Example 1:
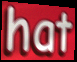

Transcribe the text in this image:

hat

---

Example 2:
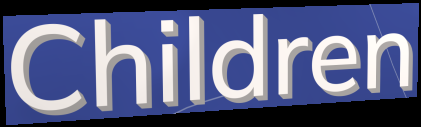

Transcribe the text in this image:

Children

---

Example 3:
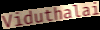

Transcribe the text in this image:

Viduthalai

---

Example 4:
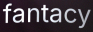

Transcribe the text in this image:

fantacy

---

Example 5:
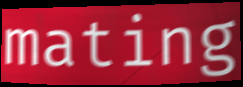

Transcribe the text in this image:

mating